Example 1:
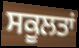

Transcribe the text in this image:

ਸਕੂਲਤਾਂ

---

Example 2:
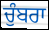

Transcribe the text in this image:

ਚੁੰਬਰਾ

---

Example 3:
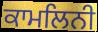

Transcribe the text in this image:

ਕਾਮਲਿਨੀ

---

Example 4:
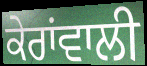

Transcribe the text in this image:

ਕੇਰਾਂਵਾਲੀ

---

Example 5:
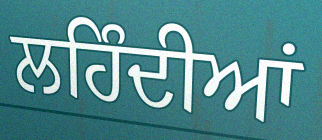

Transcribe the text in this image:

ਲਹਿੰਦੀਆਂ